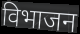
विभाजन